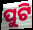
ପୁଟି